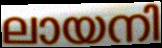
ലായനി